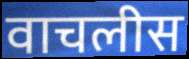
वाचलीस